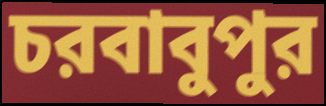
চরবাবুপুর